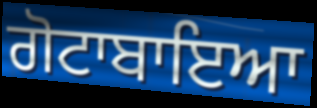
ਗੋਟਾਬਾਇਆ